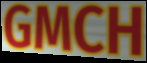
GMCH